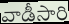
వాడీసారి